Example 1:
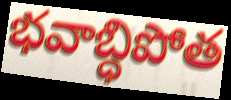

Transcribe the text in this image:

భవాబ్ధిపోత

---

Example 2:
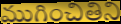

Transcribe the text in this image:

ముగించితిని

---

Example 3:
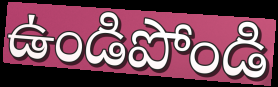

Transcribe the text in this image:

ఉండిపోండి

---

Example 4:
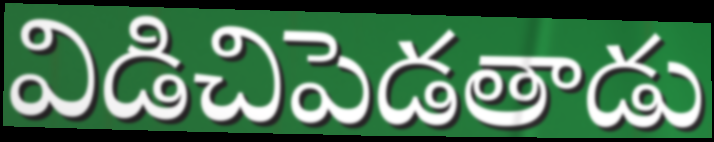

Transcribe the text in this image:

విడిచిపెడతాడు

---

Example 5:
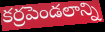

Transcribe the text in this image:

కర్రపెండలాన్ని